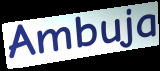
Ambuja